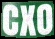
CXO